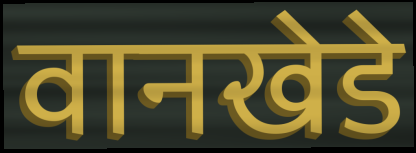
वानखेडे